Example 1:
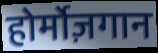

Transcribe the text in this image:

होर्मोज़गान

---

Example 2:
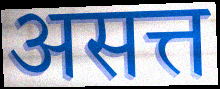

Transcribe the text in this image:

असत्त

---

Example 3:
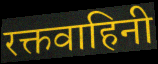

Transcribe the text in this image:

रक्तवाहिनी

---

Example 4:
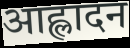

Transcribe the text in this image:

आह्लादन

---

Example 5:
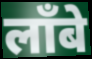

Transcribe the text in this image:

लाँबे